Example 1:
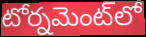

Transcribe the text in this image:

టోర్నమెంట్‌లో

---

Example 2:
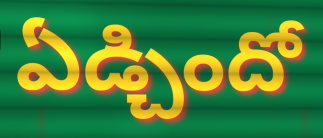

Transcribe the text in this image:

ఏడ్చిందో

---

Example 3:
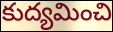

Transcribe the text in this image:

కుద్యమించి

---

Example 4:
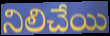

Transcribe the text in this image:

నిలిచేయి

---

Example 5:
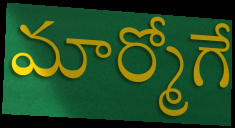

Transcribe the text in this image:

మార్మోగే